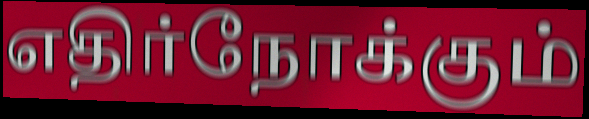
எதிர்நோக்கும்